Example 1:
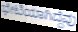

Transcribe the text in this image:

ಭೇಟಿಯಾಗಿದ್ದೆವು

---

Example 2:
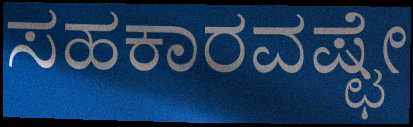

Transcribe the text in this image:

ಸಹಕಾರವಷ್ಟೇ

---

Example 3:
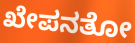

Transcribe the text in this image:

ಖೇಪನತೋ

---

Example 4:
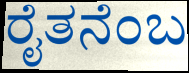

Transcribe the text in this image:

ರೈತನೆಂಬ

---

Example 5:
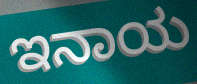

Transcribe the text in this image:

ಇನಾಯ